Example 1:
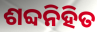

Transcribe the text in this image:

ଶବ୍ଦନିହିତ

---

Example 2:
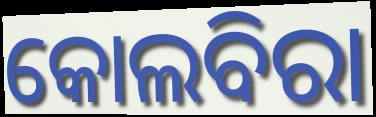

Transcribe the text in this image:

କୋଲବିରା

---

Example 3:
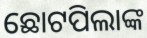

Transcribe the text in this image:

ଛୋଟପିଲାଙ୍କ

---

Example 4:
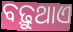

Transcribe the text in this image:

ବଢ଼ୁଥାଏ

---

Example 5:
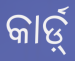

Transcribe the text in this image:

କାର୍ଡ଼୍